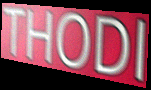
THODI